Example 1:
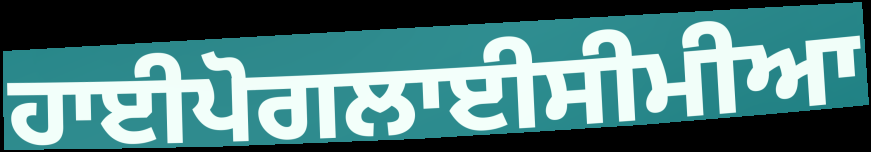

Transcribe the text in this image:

ਹਾਈਪੋਗਲਾਈਸੀਮੀਆ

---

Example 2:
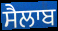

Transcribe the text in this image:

ਸੈਲਾਬ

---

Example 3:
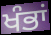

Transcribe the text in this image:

ਖੰਭਾਂ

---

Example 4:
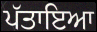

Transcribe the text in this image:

ਪੱਤਾਇਆ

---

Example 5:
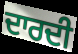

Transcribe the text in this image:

ਦਾਰਦੀ